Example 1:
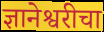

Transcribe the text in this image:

ज्ञानेश्वरीचा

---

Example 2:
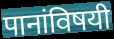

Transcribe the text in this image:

पानांविषयी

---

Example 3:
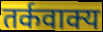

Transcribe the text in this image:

तर्कवाक्य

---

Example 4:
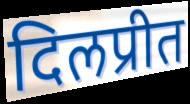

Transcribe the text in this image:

दिलप्रीत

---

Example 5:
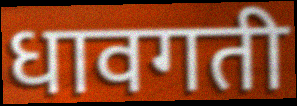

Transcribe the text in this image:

धावगती